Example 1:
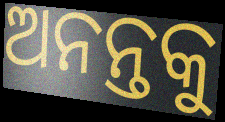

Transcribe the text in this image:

ଅନନ୍ତକୁ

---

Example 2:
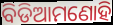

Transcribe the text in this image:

ବିଡିଆମଣୋହି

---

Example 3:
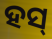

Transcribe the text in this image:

ହସ୍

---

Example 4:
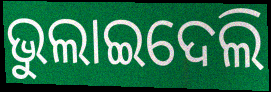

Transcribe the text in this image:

ଭୁଲାଇଦେଲି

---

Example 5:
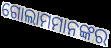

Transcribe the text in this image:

ଗୋଲାମମାନଙ୍କର